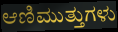
ಆಣಿಮುತ್ತುಗಳು